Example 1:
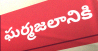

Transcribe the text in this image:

ఘర్మజలానికి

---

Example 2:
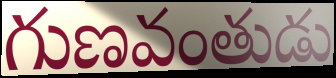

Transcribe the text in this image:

గుణవంతుడు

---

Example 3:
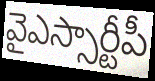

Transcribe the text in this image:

వైఎస్సార్టీపీ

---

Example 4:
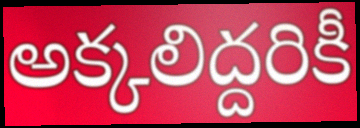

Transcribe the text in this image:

అక్కలిద్దరికీ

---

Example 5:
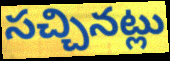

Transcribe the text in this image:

సచ్చినట్లు